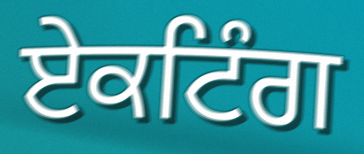
ਏਕਟਿੰਗ